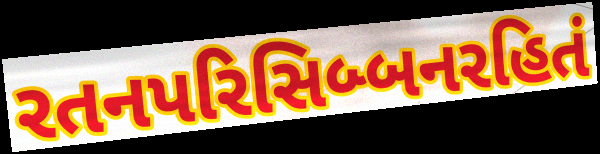
રતનપરિસિબ્બનરહિતં